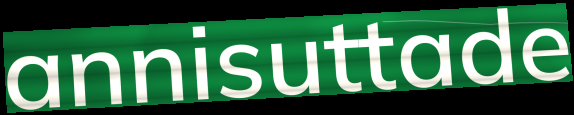
annisuttade